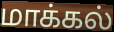
மாக்கல்